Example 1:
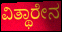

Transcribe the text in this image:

ವಿತ್ಥಾರೇನ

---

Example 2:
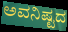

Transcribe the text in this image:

ಅವನಿಷ್ಟದ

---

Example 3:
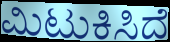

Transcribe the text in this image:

ಮಿಟುಕಿಸಿದೆ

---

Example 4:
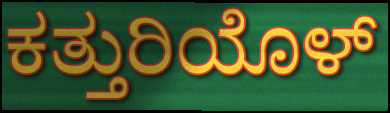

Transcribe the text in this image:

ಕತ್ತುರಿಯೊಳ್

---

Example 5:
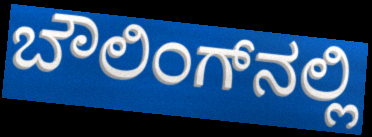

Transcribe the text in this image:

ಬೌಲಿಂಗ್‌ನಲ್ಲಿ